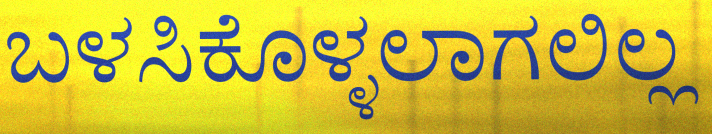
ಬಳಸಿಕೊಳ್ಳಲಾಗಲಿಲ್ಲ